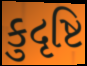
કુદૃષ્ટિ